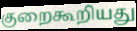
குறைகூறியது